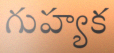
గుహ్యక